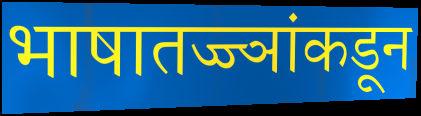
भाषातज्ज्ञांकडून